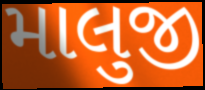
માલુજી